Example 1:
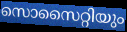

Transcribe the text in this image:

സൊസൈറ്റിയും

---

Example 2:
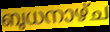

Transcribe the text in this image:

ബുധനാഴ്‌ച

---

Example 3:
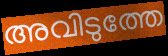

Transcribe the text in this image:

അവിടുത്തേ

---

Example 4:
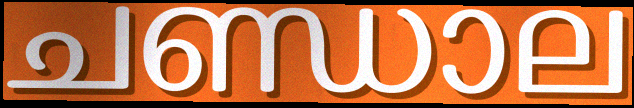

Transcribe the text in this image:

ചണ്ഡാല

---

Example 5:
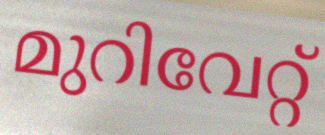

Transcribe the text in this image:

മുറിവേറ്റ്